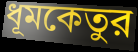
ধূমকেতুর